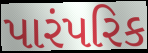
પારંપરિક